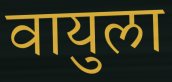
वायुला